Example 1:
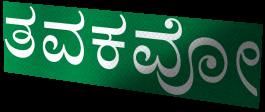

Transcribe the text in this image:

ತವಕವೋ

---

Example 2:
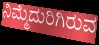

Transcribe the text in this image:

ನಿಮ್ಮೆದುರಿಗಿರುವ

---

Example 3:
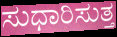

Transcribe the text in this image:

ಸುಧಾರಿಸುತ್ತ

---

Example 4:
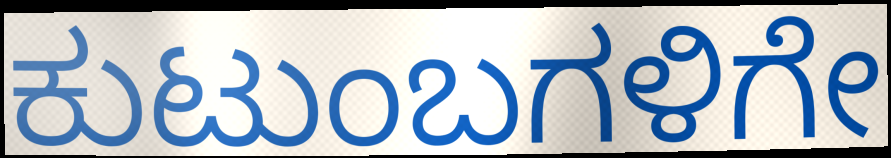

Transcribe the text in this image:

ಕುಟುಂಬಗಳಿಗೇ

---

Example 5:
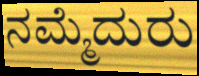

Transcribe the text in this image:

ನಮ್ಮೆದುರು